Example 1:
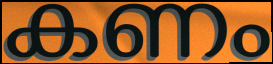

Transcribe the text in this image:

കണം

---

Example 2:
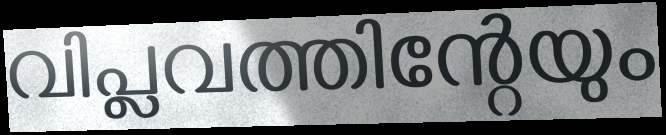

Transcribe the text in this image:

വിപ്ലവത്തിന്റേയും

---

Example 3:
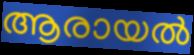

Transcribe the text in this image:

ആരായൽ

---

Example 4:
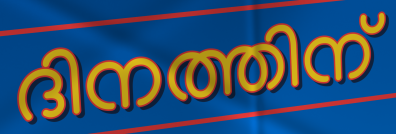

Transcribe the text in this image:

ദിനത്തിന്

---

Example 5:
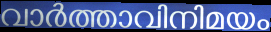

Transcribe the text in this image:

വാർത്താവിനിമയം